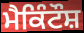
ਮੈਕਿੰਟੌਸ਼